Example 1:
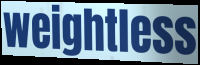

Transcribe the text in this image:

weightless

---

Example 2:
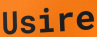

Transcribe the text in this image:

Usire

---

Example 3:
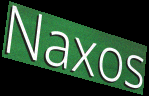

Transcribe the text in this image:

Naxos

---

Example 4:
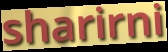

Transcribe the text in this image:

sharirni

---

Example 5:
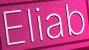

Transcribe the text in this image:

Eliab